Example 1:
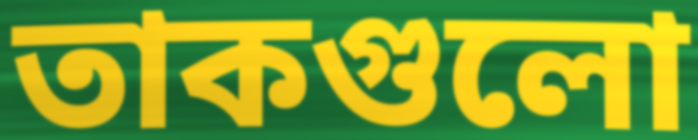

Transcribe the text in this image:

তাকগুলো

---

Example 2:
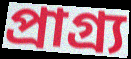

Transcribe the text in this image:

প্রাগ্র্য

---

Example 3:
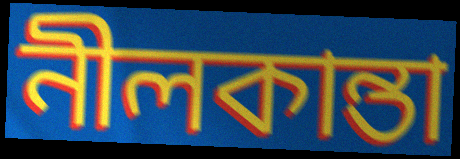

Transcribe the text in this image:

নীলকান্তা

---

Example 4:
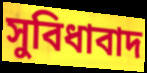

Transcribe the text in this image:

সুবিধাবাদ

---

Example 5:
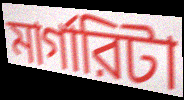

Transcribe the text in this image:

মার্গারিটা